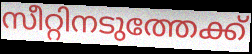
സീറ്റിനടുത്തേക്ക്